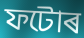
ফটোৰ